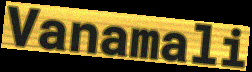
Vanamali